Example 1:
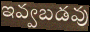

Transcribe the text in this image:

ఇవ్వబడవు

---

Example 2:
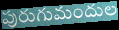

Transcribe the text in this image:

పురుగుమందుల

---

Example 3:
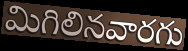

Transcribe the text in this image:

మిగిలినవారగు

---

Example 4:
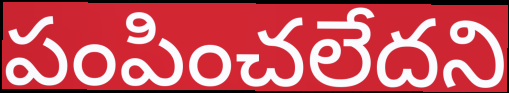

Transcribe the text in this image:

పంపించలేదని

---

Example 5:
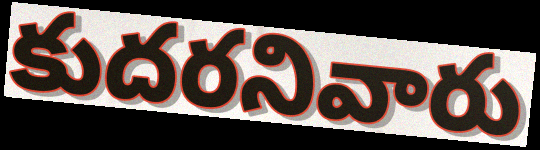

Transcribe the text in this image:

కుదరనివారు